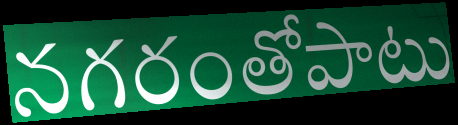
నగరంతోపాటు